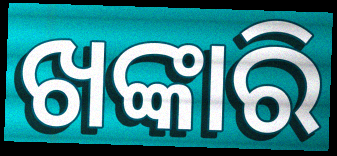
ଖଙ୍କାରି